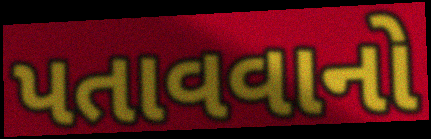
પતાવવાનો